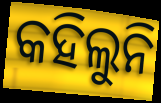
କହିଲୁନି